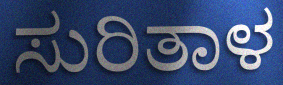
ಸುರಿತಾಳ